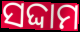
ସଦ୍ଦାମ